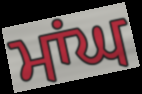
ਮਾਂਘ